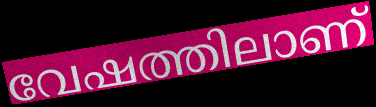
വേഷത്തിലാണ്